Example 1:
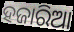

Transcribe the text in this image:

ହଜାରିଆ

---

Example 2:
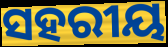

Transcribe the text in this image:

ସହରୀୟ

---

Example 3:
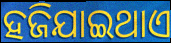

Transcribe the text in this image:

ହଜିଯାଇଥାଏ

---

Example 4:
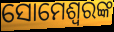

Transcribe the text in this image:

ସୋମେଶ୍ୱରଙ୍କ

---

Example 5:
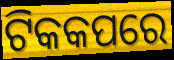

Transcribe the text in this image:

ଟିକକପରେ